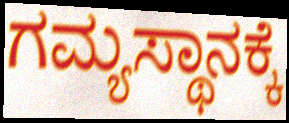
ಗಮ್ಯಸ್ಥಾನಕ್ಕೆ